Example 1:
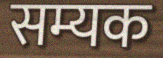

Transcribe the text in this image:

सम्‍यक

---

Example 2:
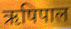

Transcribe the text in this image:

ऋषिपाल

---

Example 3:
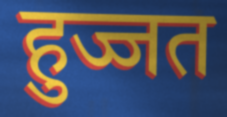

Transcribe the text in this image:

हुज्जत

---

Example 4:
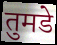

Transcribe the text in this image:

तुमडे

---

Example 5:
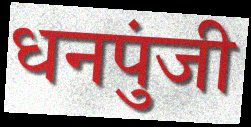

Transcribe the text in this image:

धनपुंजी